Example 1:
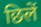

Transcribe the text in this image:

छिलें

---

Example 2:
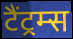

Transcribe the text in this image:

टैंट्रम्स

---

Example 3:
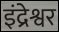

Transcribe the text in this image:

इंद्रेश्वर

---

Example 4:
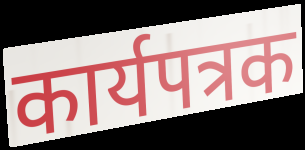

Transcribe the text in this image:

कार्यपत्रक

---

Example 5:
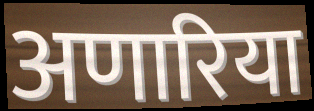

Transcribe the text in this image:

अणारिया